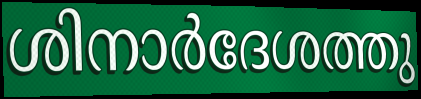
ശിനാർദേശത്തു